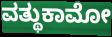
ವತ್ಥುಕಾಮೋ